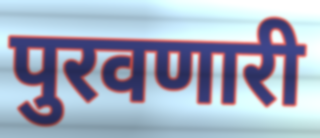
पुरवणारी